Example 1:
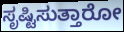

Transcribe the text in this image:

ಸೃಷ್ಟಿಸುತ್ತಾರೋ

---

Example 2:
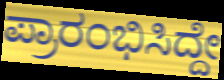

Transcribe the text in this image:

ಪ್ರಾರಂಭಿಸಿದ್ದೇ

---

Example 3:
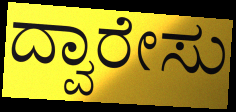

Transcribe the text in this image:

ದ್ವಾರೇಸು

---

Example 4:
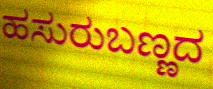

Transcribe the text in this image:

ಹಸುರುಬಣ್ಣದ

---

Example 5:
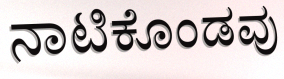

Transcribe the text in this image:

ನಾಟಿಕೊಂಡವು